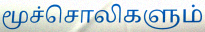
மூச்சொலிகளும்